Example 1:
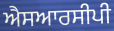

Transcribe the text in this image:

ਐਸਆਰਸੀਪੀ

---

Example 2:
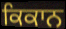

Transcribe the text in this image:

ਕਿਕਾਨ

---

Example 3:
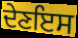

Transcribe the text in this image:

ਦੇਣਇਸ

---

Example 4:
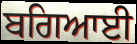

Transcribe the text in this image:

ਬਗਿਆਈ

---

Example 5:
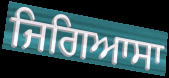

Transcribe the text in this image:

ਜਿਗਿਆਸਾ